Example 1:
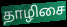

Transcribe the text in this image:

தாழிசை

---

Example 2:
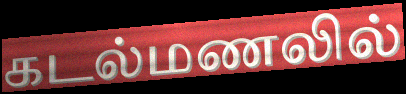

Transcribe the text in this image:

கடல்மணலில்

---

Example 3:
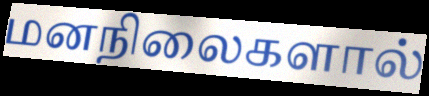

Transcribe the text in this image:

மனநிலைகளால்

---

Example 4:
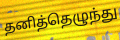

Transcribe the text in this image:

தனித்தெழுந்து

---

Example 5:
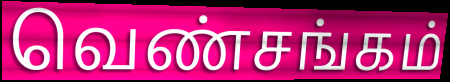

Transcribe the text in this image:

வெண்சங்கம்